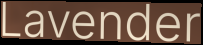
Lavender